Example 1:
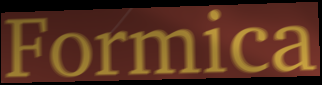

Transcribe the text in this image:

Formica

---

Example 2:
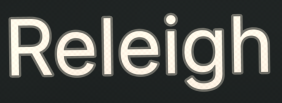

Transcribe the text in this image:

Releigh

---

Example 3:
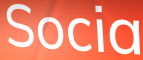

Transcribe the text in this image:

Socia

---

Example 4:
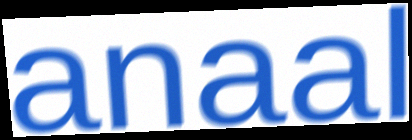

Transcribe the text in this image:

anaal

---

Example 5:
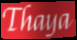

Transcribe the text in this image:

Thaya